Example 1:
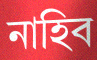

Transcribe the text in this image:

নাহিব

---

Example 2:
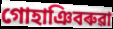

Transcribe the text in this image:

গোহাঞিবৰুৱা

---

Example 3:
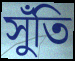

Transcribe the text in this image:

সুঁতি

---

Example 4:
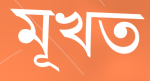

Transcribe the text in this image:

মূখত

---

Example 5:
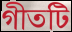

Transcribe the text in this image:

গীতটি